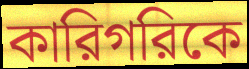
কারিগরিকে